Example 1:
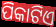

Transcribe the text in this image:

ପିକାଟିଏ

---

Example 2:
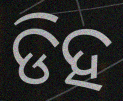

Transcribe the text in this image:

ଡିହ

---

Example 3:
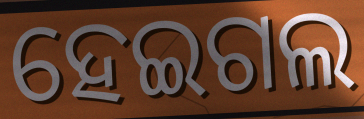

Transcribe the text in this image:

ହେଇଗଲ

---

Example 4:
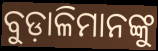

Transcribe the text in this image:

ବୁଡ଼ାଳିମାନଙ୍କୁ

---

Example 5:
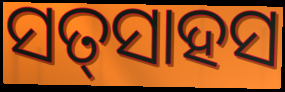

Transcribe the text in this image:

ସତ୍‌ସାହସ